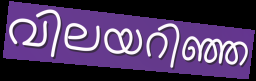
വിലയറിഞ്ഞ